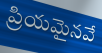
ప్రియమైనవే